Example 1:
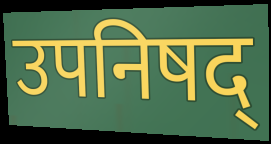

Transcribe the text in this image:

उपनिषद्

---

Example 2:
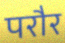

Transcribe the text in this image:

परौर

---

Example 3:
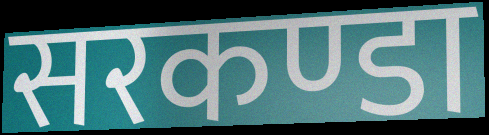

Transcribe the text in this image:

सरकण्डा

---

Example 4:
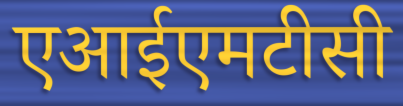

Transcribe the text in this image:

एआईएमटीसी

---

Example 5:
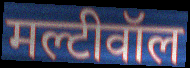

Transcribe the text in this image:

मल्टीवॉल